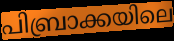
പിബ്രാക്കയിലെ